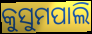
କୁସୁମପାଲି